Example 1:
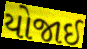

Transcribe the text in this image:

યોજાઈ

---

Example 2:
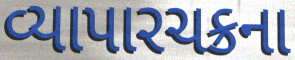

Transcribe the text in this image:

વ્યાપારચક્રના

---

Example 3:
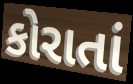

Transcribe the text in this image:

કોરાતાં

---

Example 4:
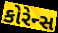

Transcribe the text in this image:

કોરેન્સ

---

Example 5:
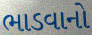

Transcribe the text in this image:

ભાડવાનો